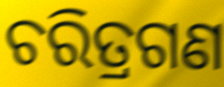
ଚରିତ୍ରଗଣ